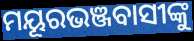
ମୟୂରଭଞ୍ଜବାସୀଙ୍କୁ